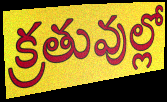
క్రతువుల్లో